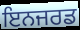
ਇਨਜਰਡ